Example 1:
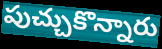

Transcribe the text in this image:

పుచ్చుకొన్నారు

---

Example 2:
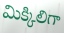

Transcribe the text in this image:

మిక్కిలిగా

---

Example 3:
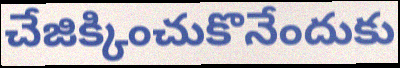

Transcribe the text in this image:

చేజిక్కించుకొనేందుకు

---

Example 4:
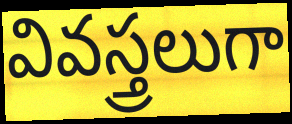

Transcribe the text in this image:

వివస్త్రలుగా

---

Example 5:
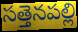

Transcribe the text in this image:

సత్తెనపల్లి